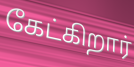
கேட்கிறார்